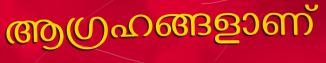
ആഗ്രഹങ്ങളാണ്